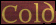
Cold